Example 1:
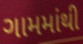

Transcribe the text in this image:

ગામમાંથી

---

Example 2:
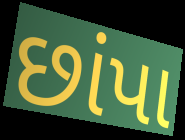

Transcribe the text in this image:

છાંપા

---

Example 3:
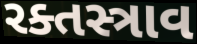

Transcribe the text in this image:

રક્તસ્ત્રાવ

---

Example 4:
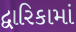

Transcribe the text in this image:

દ્વારિકામાં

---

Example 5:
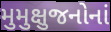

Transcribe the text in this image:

મુમુક્ષુજનોનાં